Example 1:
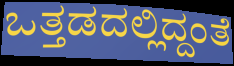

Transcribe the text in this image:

ಒತ್ತಡದಲ್ಲಿದ್ದಂತೆ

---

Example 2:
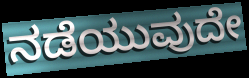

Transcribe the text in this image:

ನಡೆಯುವುದೇ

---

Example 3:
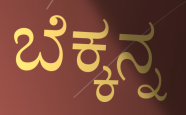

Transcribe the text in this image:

ಬೆಕ್ಕನ್ನ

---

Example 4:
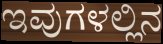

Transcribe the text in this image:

ಇವುಗಳಲ್ಲಿನ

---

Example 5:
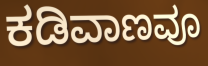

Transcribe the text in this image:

ಕಡಿವಾಣವೂ